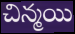
చిన్మయి